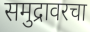
समुद्रावरचा